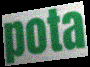
pota